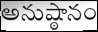
అనుష్ఠానం